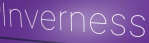
Inverness